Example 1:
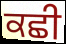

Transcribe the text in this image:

ਕਛੀ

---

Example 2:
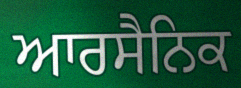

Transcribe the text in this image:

ਆਰਸੈਨਿਕ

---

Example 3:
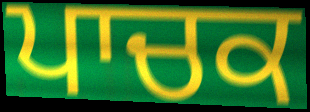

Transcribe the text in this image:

ਪਾਚਕ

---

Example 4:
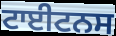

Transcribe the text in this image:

ਟਾਈਟਨਸ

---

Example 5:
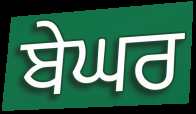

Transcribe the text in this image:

ਬੇਘਰ